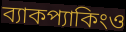
ব্যাকপ্যাকিংও